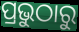
ପ୍ରଭୁଠାରୁ